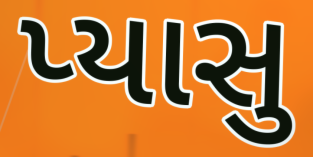
પ્યાસુ